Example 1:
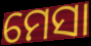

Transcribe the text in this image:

ମେସା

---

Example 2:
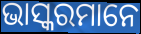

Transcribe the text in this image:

ଭାସ୍କରମାନେ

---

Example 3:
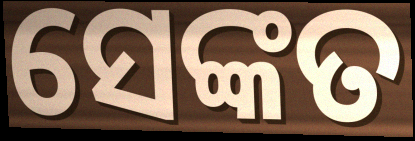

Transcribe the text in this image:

ସେଙ୍କତ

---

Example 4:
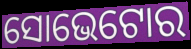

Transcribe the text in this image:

ସୋଭେଟୋର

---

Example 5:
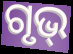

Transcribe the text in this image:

ଗୃଭ୍